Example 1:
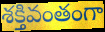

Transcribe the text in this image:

శక్తివంతంగా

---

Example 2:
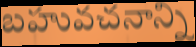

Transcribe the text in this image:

బహువచనాన్ని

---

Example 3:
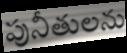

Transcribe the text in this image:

పునీతులను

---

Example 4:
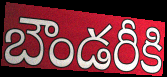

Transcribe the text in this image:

బౌండరీకి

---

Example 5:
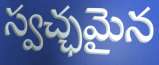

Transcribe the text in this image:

స్వచ్ఛమైన